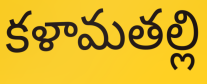
కళామతల్లి